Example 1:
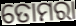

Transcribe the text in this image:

ତୋମରା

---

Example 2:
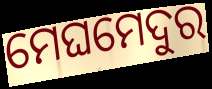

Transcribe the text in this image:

ମେଘମେଦୁର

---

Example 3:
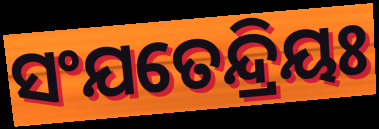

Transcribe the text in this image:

ସଂଯତେନ୍ଦ୍ରିୟଃ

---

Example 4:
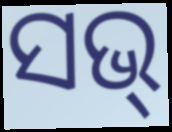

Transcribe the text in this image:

ସଭ୍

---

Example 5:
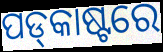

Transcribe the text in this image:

ପଡ୍‌କାଷ୍ଟରେ